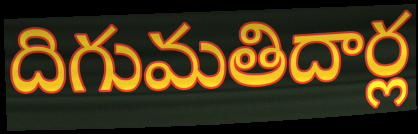
దిగుమతిదార్ల